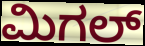
ಮಿಗಲ್